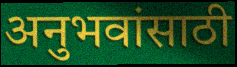
अनुभवांसाठी